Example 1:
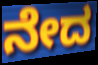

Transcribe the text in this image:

ನೇದ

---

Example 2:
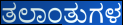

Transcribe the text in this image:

ತಲಾಂತುಗಳ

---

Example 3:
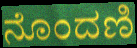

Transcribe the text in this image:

ನೊಂದಣಿ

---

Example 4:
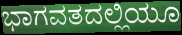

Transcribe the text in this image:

ಭಾಗವತದಲ್ಲಿಯೂ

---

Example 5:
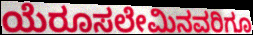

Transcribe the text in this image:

ಯೆರೂಸಲೇಮಿನವರಿಗೂ